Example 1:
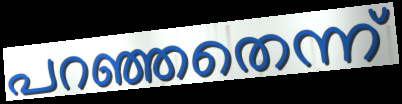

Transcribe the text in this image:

പറഞ്ഞതെന്ന്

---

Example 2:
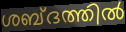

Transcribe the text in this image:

ശബ്ദത്തിൽ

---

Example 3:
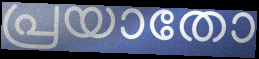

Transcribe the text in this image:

പ്രയാതോ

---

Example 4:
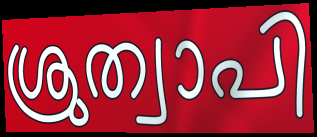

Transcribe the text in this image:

ശ്രുത്വാപി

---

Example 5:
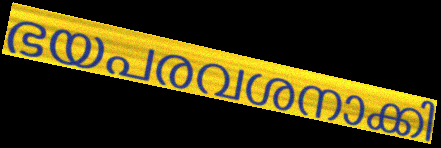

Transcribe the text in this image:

ഭയപരവശനാക്കി